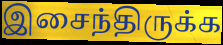
இசைந்திருக்க